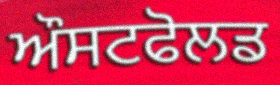
ਔਸਟਫੋਲਡ